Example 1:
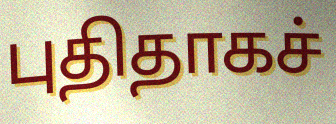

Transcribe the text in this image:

புதிதாகச்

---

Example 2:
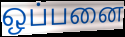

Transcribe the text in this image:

ஒப்பனை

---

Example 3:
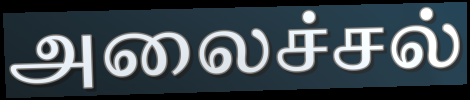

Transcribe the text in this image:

அலைச்சல்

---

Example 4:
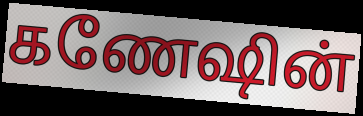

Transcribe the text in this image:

கணேஷின்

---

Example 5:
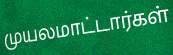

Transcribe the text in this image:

முயலமாட்டார்கள்